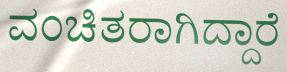
ವಂಚಿತರಾಗಿದ್ದಾರೆ